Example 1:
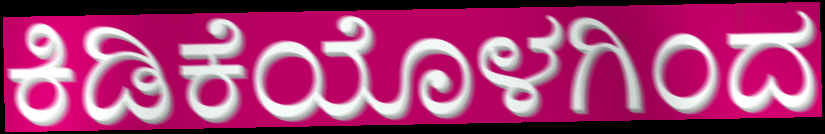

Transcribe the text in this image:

ಕಿಡಿಕೆಯೊಳಗಿಂದ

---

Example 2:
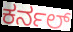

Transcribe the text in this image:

ಕರ್ನಲ್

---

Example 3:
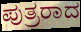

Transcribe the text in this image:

ಪುತ್ರರಾದ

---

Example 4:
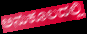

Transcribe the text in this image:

ಅನುಕೂಲದಲ್ಲಿ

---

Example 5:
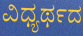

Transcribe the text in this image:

ವಿಧ್ಯರ್ಥದ